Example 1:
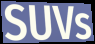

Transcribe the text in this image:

SUVs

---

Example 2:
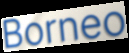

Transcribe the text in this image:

Borneo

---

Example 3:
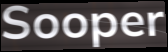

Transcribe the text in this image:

Sooper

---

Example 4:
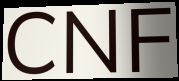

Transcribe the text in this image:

CNF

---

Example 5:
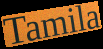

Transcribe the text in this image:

Tamila